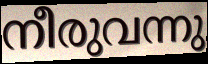
നീരുവന്നു